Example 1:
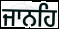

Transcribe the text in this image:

ਜਾਨਹਿ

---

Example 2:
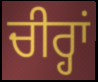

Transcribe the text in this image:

ਚੀਰ੍ਹਾਂ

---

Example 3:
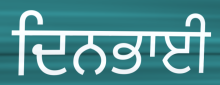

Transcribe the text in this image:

ਦਿਨਭਾਈ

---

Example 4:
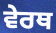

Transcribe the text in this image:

ਵੇਰਥ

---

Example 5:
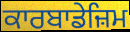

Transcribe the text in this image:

ਕਾਰਬਾਡੇਜ਼ਿਮ